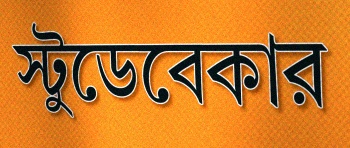
স্টুডেবেকার